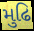
મુઢિ